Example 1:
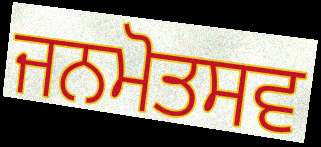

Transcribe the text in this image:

ਜਨਮੋਤਸਵ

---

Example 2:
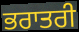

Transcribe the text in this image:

ਭਰਾਤਰੀ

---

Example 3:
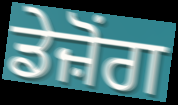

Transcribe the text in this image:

ਡੇਜ਼ੋਂਗ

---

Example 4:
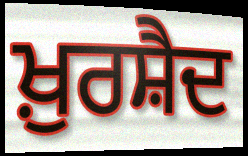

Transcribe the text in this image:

ਖ਼ੁਰਸ਼ੈਦ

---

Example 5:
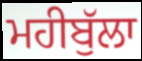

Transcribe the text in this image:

ਮਹੀਬੁੱਲਾ